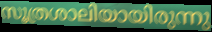
സൂത്രശാലിയായിരുന്നു